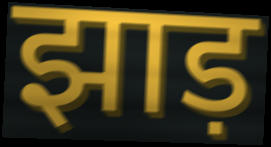
झाड़